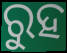
ରୁହ